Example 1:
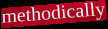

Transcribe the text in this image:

methodically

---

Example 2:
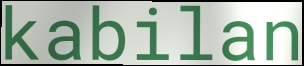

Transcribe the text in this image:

kabilan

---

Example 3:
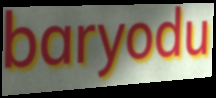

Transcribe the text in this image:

baryodu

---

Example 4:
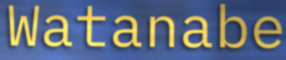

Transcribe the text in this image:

Watanabe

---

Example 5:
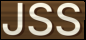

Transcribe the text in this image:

JSS